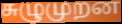
சுழுமுறன